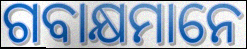
ଗବାକ୍ଷମାନେ